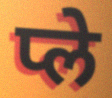
प्ले